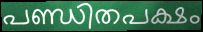
പണ്ഡിതപക്ഷം